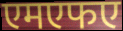
एमएफए